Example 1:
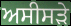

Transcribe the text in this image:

ਅਸੀਸੜੇ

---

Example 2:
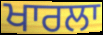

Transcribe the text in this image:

ਖਾਰਲਾ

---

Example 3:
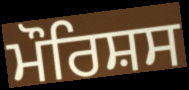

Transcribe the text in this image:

ਮੌਰਿਸ਼ਸ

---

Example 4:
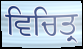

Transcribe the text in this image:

ਵਿਚਿਤ੍ਰ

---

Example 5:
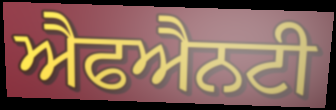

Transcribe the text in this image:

ਐਫਐਨਟੀ